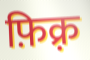
फ़िक़्र